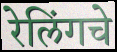
रेलिंगचे